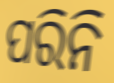
ପରିନି